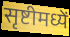
सृष्टीमध्यें